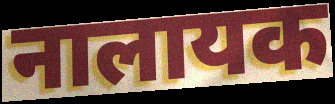
नालायक